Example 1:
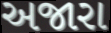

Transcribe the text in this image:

અજારા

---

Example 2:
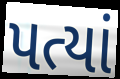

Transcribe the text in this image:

પત્યાં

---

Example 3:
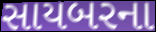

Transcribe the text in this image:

સાયબરના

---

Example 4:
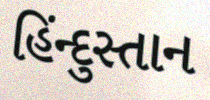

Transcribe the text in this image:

હિંન્દુસ્તાન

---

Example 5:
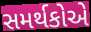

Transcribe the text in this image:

સમર્થકોએ